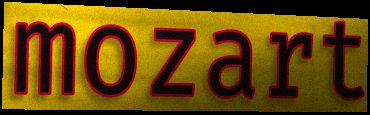
mozart